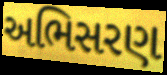
અભિસરણ